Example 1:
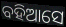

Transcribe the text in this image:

ବହିଆସେ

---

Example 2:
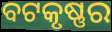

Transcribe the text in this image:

ବଟକୃଷ୍ଣର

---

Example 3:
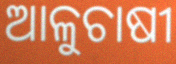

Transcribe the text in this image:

ଆଳୁଚାଷୀ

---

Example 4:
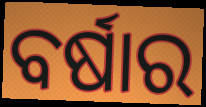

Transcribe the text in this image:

ବର୍ଷାର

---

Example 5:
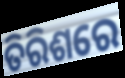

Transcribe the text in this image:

ତିରିଶରେ